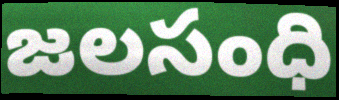
జలసంధి